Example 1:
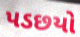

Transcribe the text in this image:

પડછયો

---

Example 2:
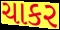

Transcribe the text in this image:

ચાકર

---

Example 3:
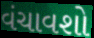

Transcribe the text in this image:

વંચાવશો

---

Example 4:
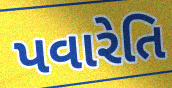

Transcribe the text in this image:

પવારેતિ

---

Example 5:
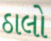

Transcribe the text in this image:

ઠાલો